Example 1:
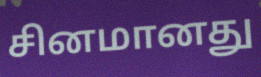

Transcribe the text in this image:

சினமானது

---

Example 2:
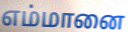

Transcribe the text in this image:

எம்மானை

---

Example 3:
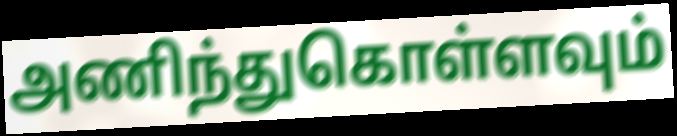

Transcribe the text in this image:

அணிந்துகொள்ளவும்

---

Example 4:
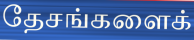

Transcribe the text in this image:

தேசங்களைக்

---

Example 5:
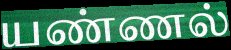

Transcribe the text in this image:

யண்ணல்